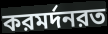
করমর্দনরত